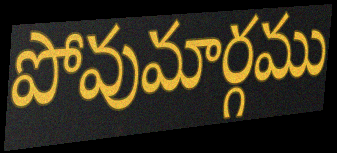
పోవుమార్గము